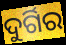
ଦୁର୍ଗିର